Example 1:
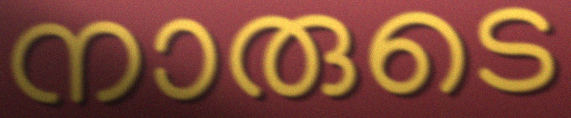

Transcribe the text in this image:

നാരുടെ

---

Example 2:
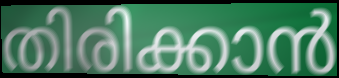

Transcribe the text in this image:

തിരിക്കാൻ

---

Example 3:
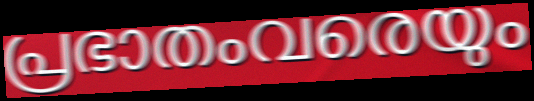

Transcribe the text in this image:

പ്രഭാതംവരെയും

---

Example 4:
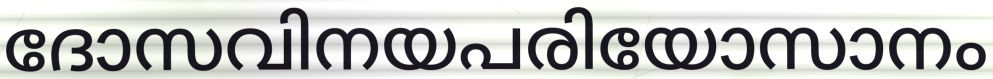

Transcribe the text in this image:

ദോസവിനയപരിയോസാനം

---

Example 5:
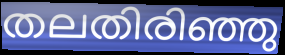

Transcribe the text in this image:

തലതിരിഞ്ഞു